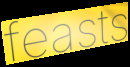
feasts